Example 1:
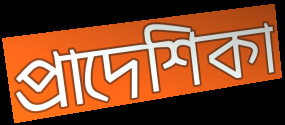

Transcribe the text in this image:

প্রাদেশিকা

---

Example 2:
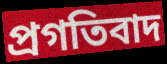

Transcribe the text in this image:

প্রগতিবাদ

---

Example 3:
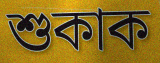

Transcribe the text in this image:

শুকাক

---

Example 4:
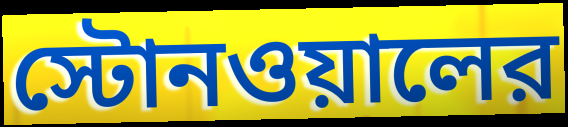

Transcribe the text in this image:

স্টোনওয়ালের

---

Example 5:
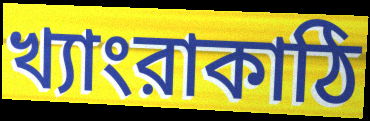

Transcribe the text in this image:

খ্যাংরাকাঠি